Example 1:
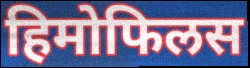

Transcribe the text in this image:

हिमोफिलस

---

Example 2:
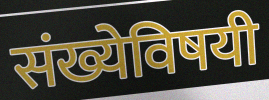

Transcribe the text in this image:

संख्येविषयी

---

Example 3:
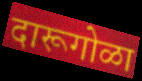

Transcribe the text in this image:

दारूगोळा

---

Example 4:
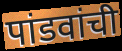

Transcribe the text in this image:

पांडवांची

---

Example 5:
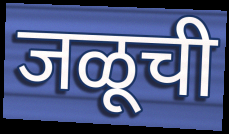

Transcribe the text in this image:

जळूची